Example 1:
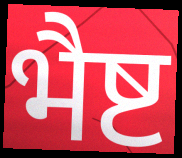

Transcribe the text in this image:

भैष्ट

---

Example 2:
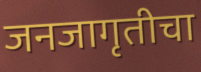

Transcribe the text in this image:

जनजागृतीचा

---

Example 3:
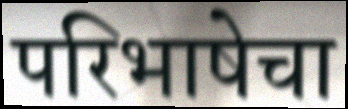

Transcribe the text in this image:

परिभाषेचा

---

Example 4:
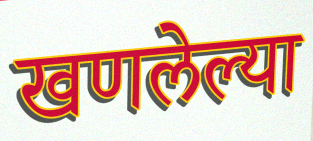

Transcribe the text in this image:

खणलेल्या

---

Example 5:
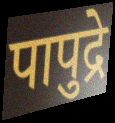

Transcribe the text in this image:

पापुद्रे